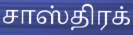
சாஸ்திரக்